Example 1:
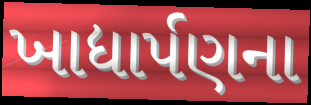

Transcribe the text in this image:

ખાદ્યાર્પણના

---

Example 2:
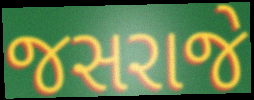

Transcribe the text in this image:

જસરાજે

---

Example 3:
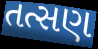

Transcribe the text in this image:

તત્સણ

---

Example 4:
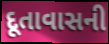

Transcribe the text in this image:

દૂતાવાસની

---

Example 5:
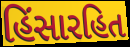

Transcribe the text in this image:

હિંસારહિત